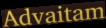
Advaitam